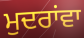
ਮੁਦਰਾਂਵਾ